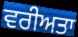
ਵਰੀਅਤਾ